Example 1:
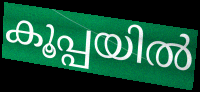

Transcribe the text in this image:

കൂപ്പയിൽ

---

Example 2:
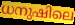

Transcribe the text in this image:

ധനുഷിലെ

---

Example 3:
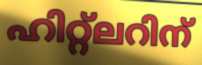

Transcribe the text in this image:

ഹിറ്റ്ലറിന്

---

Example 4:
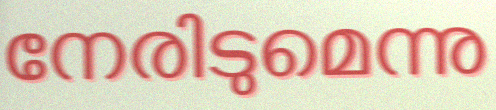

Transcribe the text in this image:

നേരിടുമെന്നു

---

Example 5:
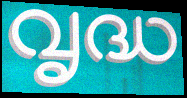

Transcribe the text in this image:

വൃദ്ധ